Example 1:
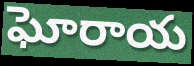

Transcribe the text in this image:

ఘోరాయ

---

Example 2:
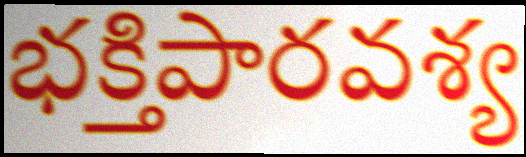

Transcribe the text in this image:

భక్తిపారవశ్య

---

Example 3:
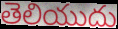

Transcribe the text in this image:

తెలియుదు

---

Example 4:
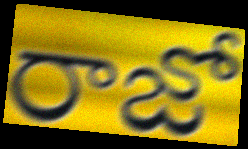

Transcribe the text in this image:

రాజో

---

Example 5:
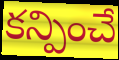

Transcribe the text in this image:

కన్పించే